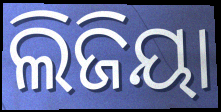
ଲିଜିୟା